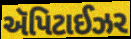
ઍપિટાઈઝર